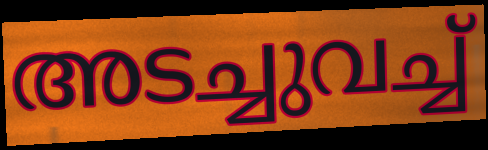
അടച്ചുവച്ച്